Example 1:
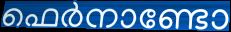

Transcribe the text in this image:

ഫെർനാണ്ടോ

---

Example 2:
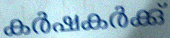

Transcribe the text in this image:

കർഷകർക്കു്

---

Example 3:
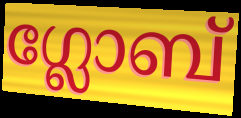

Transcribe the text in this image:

ഗ്ലോബ്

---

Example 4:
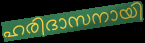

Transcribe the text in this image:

ഹരിദാസനായി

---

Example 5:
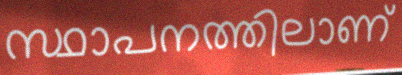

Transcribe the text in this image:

സ്ഥാപനത്തിലാണ്